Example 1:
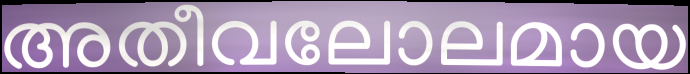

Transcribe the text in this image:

അതീവലോലമായ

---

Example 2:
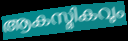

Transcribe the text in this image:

ആകസ്മികവും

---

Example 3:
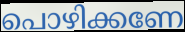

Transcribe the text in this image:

പൊഴിക്കണേ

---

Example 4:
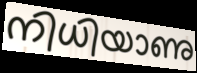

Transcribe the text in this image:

നിധിയാണു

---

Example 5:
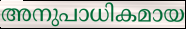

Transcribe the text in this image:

അനുപാധികമായ